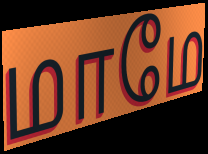
மாமே